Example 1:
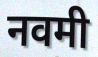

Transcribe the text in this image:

नवमी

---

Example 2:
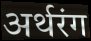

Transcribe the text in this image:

अर्थरंग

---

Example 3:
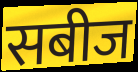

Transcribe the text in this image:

सबीज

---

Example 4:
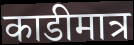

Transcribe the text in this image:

काडीमात्र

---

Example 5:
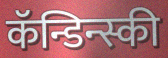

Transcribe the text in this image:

कॅन्डिन्स्की